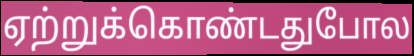
ஏற்றுக்கொண்டதுபோல